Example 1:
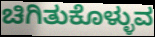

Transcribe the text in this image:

ಚಿಗಿತುಕೊಳ್ಳುವ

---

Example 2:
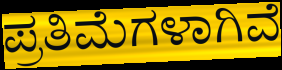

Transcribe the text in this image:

ಪ್ರತಿಮೆಗಳಾಗಿವೆ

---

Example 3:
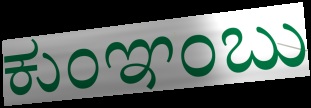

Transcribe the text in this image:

ಕುಂಞಂಬು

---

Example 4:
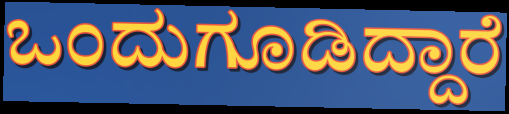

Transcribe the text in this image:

ಒಂದುಗೂಡಿದ್ದಾರೆ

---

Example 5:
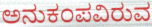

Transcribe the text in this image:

ಅನುಕಂಪವಿರುವ